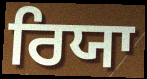
ਰਿਯਾ